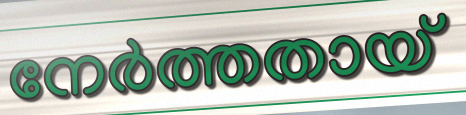
നേർത്തതായ്